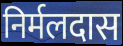
निर्मलदास